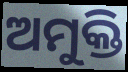
ଅମୁକ୍ତି